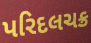
પરિદલચક્ર